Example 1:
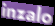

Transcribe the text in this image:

inzalo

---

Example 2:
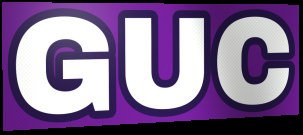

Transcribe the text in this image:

GUC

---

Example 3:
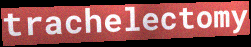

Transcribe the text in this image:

trachelectomy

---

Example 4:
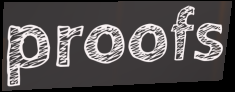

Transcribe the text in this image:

proofs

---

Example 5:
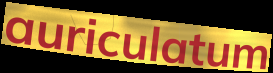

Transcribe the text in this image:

auriculatum